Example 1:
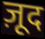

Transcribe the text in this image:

ज़ूद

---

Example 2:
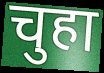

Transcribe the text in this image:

चुहा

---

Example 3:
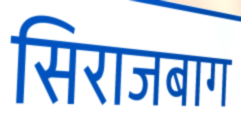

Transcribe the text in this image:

सिराजबाग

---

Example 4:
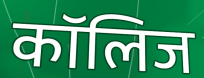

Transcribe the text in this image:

कॉलिज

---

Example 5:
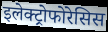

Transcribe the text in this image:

इलेक्ट्रोफोरेसिस